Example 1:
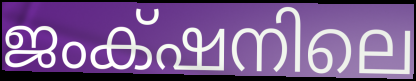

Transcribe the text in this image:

ജംക്‌ഷനിലെ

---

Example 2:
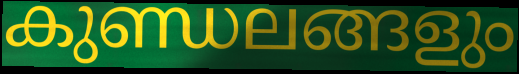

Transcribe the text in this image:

കുണ്ഡലങ്ങളും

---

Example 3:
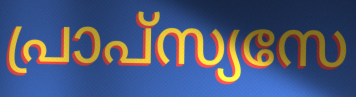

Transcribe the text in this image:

പ്രാപ്സ്യസേ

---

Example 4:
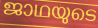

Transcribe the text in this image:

ജാഥയുടെ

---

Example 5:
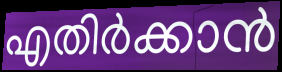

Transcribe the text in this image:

എതിർക്കാൻ